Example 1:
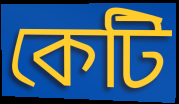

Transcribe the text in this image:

কেটি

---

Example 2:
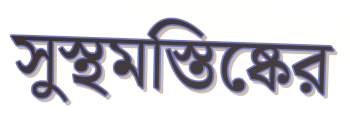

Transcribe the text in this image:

সুস্থমস্তিষ্কের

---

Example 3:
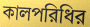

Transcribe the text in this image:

কালপরিধির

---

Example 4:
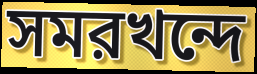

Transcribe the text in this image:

সমরখন্দে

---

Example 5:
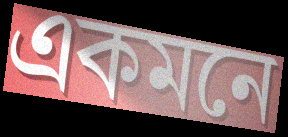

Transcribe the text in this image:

একমনে